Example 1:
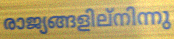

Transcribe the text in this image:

രാജ്യങ്ങളില്നിന്നു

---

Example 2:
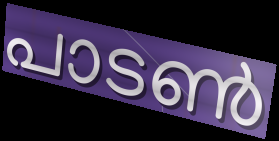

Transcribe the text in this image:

പാടൺ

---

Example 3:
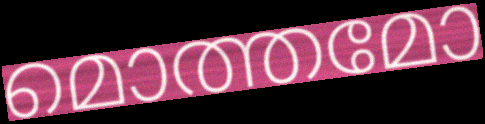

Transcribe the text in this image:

മൊത്തമോ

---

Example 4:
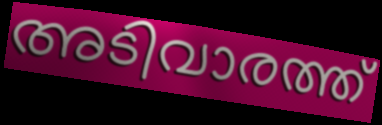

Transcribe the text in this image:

അടിവാരത്ത്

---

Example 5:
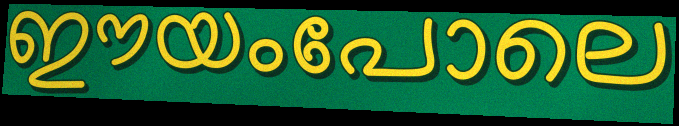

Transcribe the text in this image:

ഈയംപോലെ